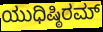
ಯುಧಿಷ್ಠಿರಮ್